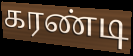
கரண்டி